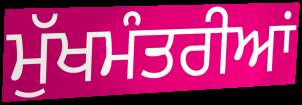
ਮੁੱਖਮੰਤਰੀਆਂ